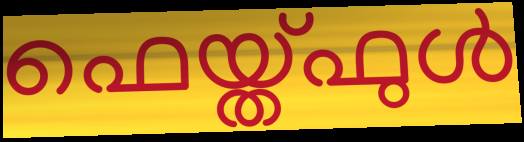
ഫെയ്ത്ഫുൾ